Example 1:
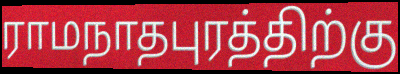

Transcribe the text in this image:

ராமநாதபுரத்திற்கு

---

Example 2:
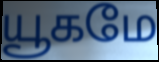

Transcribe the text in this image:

யூகமே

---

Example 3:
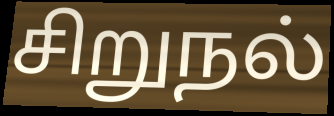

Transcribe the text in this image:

சிறுநல்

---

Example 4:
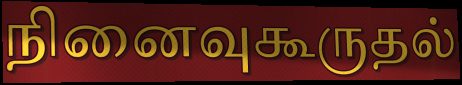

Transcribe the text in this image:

நினைவுகூருதல்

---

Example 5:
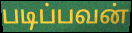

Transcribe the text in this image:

படிப்பவன்